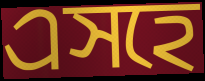
এসহে